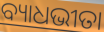
ବ୍ୟାଧଭୀତା